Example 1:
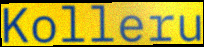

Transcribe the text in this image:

Kolleru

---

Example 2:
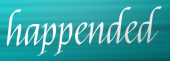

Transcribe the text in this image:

happended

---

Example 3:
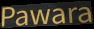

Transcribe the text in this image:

Pawara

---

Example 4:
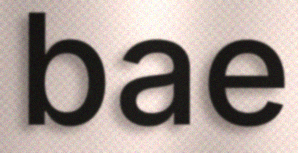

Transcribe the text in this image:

bae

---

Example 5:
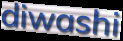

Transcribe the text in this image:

diwashi